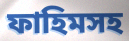
ফাহিমসহ